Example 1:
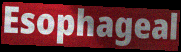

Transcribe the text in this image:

Esophageal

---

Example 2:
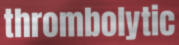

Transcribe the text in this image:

thrombolytic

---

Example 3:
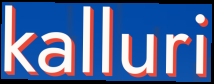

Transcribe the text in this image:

kalluri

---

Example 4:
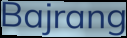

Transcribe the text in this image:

Bajrang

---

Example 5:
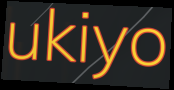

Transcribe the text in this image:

ukiyo